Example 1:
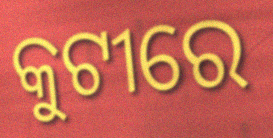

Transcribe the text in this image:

କୁଟୀରେ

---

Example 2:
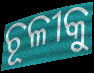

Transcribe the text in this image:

ଚୂଳୀକୁ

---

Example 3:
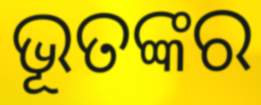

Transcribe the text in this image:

ଭୂତଙ୍କର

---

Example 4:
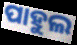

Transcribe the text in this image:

ପାହୁଲ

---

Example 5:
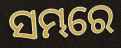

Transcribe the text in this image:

ସମ୍ଭରେ